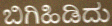
ಬಿಗಿಹಿಡಿದು